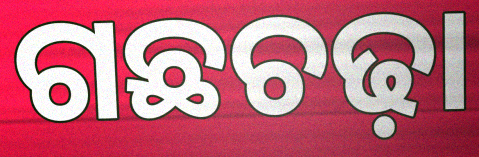
ଗଛଚଢ଼ା